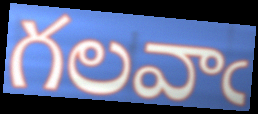
గలవాఁ